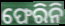
ଫେରିନି